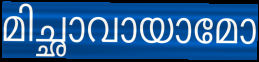
മിച്ഛാവായാമോ